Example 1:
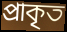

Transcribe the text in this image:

প্রাকৃত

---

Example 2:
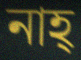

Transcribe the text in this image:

নাহ্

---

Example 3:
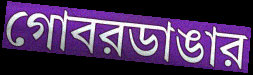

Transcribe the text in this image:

গোবরডাঙার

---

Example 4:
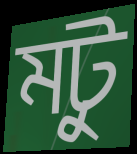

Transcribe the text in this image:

মটু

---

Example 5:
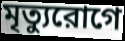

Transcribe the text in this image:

মৃত্যুরোগে